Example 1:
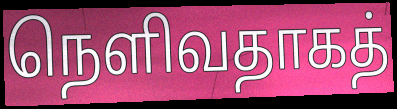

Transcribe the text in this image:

நெளிவதாகத்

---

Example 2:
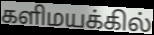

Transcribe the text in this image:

களிமயக்கில்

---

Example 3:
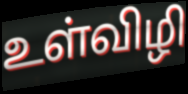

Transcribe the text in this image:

உள்விழி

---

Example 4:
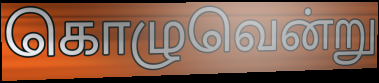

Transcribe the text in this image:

கொழுவென்று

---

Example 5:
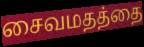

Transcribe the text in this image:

சைவமதத்தை